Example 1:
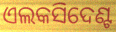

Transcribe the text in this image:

ଏଲକସିଦେଣ୍ଟ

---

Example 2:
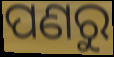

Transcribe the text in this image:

ପଣରୁ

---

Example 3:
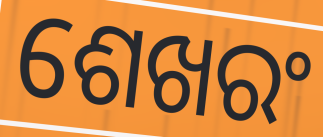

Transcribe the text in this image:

ଶେଖରଂ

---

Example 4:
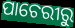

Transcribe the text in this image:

ପାଚେରୀରୁ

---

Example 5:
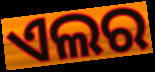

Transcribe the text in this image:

ଏଲର